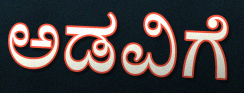
ಅಡವಿಗೆ